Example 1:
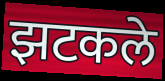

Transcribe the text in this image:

झटकले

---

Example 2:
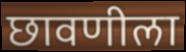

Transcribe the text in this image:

छावणीला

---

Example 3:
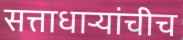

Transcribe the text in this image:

सत्ताधाऱ्यांचीच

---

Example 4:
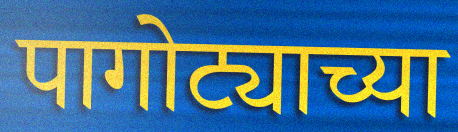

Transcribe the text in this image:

पागोट्याच्या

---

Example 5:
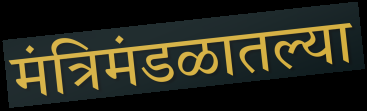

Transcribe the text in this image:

मंत्रिमंडळातल्या